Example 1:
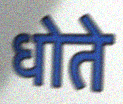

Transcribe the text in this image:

धोते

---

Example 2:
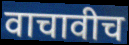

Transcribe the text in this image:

वाचावीच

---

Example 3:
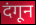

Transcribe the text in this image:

दंगून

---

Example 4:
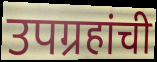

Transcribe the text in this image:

उपग्रहांची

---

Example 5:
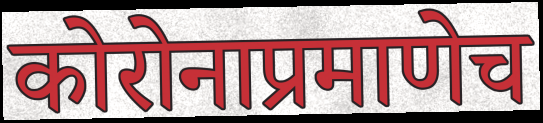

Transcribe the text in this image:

कोरोनाप्रमाणेच